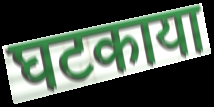
घटकाया